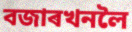
বজাৰখনলৈ